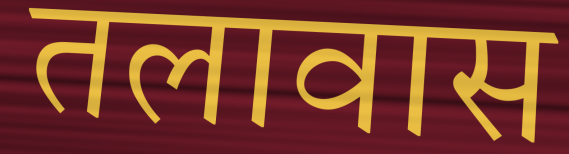
तलावास